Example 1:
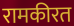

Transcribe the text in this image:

रामकीरत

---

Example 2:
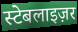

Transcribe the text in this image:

स्टेबलाइज़र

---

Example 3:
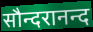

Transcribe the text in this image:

सौन्दरानन्द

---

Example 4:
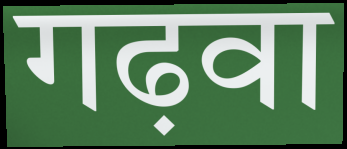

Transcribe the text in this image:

गढ़वा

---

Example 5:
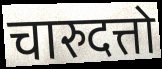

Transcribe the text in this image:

चारुदत्तो